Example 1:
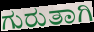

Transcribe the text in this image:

ಗುರುತಾಗಿ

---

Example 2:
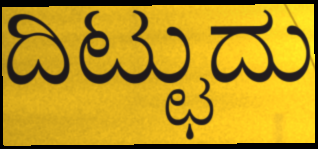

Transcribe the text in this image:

ದಿಟ್ಟುದು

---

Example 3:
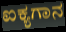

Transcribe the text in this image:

ಐಕ್ಯಗಾನ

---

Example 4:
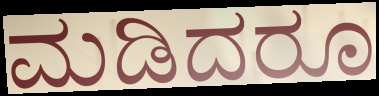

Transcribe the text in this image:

ಮಡಿದರೂ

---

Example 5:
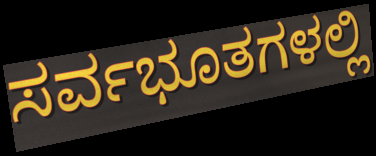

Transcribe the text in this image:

ಸರ್ವಭೂತಗಳಲ್ಲಿ